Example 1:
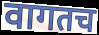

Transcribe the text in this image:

वागतच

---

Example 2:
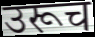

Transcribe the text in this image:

उरूच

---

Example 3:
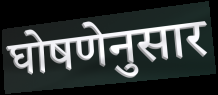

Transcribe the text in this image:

घोषणेनुसार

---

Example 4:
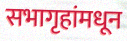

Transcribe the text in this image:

सभागृहांमधून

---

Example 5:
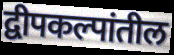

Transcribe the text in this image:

द्वीपकल्पांतील